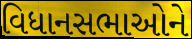
વિધાનસભાઓને